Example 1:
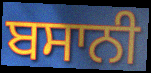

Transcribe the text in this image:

ਬਸਾਨੀ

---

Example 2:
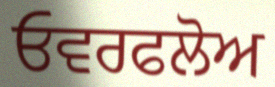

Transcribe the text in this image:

ਓਵਰਫਲੋਅ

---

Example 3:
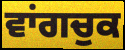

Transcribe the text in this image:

ਵਾਂਗਚੁਕ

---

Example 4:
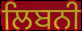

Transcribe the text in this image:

ਲਿਬਨੀ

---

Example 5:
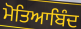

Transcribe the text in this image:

ਮੋਤਿਆਬਿੰਦ